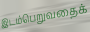
இடம்பெறுவதைக்